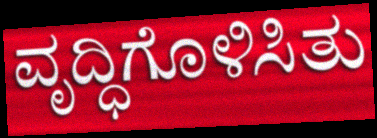
ವೃದ್ಧಿಗೊಳಿಸಿತು